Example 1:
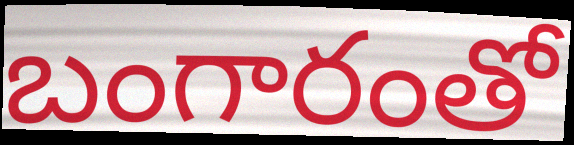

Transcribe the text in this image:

బంగారంతో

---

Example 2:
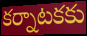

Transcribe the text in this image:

కర్నాటకకు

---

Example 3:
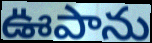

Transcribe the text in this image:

ఊపాను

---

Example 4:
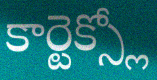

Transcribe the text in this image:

కార్టెక్స్లో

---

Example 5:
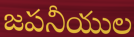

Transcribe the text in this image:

జపనీయుల